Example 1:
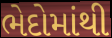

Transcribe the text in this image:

ભેદોમાંથી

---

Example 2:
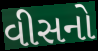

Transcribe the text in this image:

વીસનો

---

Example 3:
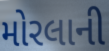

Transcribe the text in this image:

મોરલાની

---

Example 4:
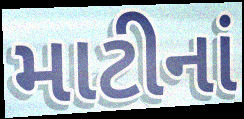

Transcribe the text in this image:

માટીનાં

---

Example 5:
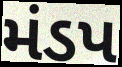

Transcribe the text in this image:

મંડપ